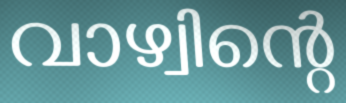
വാഴ്വിന്റെ